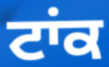
ਟਾਂਕ